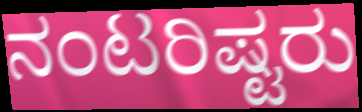
ನಂಟರಿಷ್ಟರು